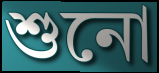
শুনো